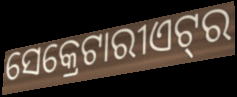
ସେକ୍ରେଟାରୀଏଟ୍‍ର